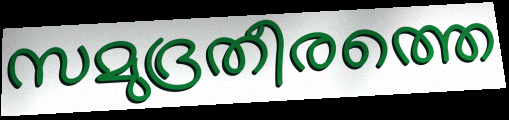
സമുദ്രതീരത്തെ